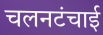
चलनटंचाई